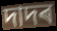
দাদৰ